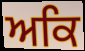
ਅਕਿ